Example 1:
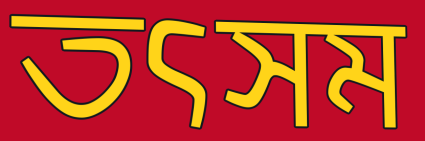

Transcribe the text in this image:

তৎসম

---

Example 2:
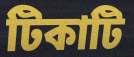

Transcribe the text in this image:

টিকাটি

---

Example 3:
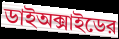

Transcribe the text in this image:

ডাইঅক্সাইডের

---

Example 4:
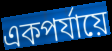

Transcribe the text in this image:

একপর্যায়ে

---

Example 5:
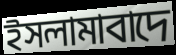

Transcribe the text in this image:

ইসলামাবাদে